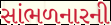
સાંભળનારની